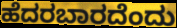
ಹೆದರಬಾರದೆಂದು